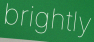
brightly